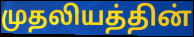
முதலியத்தின்